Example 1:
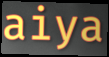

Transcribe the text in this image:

aiya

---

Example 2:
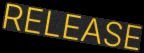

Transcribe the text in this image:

RELEASE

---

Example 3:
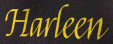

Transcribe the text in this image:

Harleen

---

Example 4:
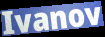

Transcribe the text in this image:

Ivanov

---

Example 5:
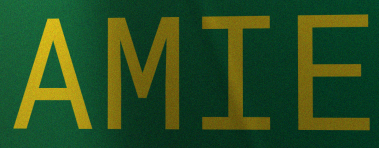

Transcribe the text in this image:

AMIE